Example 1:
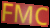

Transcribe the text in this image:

FMC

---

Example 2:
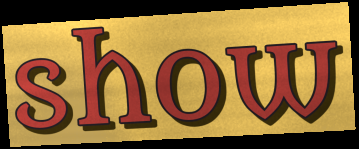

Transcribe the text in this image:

show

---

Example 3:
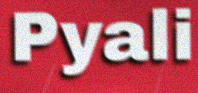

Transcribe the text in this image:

Pyali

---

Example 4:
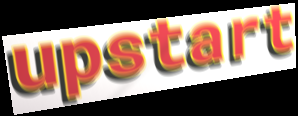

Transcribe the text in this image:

upstart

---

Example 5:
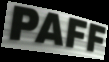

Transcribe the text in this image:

PAFF